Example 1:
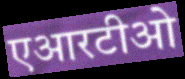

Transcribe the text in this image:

एआरटीओ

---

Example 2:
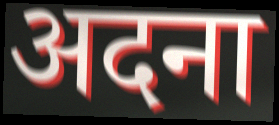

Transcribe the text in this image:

अदना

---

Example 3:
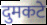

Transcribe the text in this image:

दुमकटे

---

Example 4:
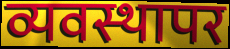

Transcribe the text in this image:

व्यवस्थापर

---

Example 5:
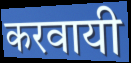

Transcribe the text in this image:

करवायी